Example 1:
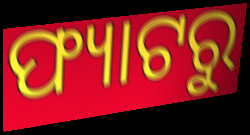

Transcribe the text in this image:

ଫ୍ୟାଟରୁ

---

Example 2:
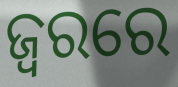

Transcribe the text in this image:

ଜ୍ବରରେ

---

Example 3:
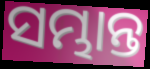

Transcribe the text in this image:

ସମ୍ଭାନ୍ତ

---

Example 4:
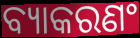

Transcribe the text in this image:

ବ୍ୟାକରଣଂ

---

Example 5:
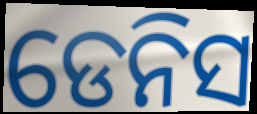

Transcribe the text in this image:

ଡେନିସ